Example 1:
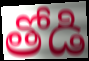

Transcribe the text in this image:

తోడి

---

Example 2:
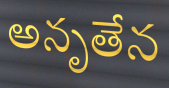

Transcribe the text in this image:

అనృతేన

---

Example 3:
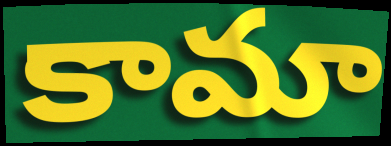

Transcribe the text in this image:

కామా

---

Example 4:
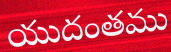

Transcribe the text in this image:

యుదంతము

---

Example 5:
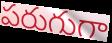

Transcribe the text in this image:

పరుగుగా